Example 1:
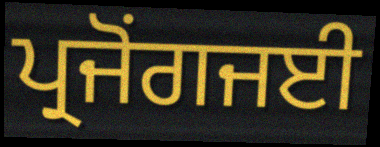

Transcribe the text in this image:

ਪ੍ਰਜੋਂਗਜਈ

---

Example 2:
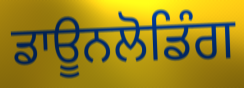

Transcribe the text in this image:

ਡਾਊਨਲੋਡਿੰਗ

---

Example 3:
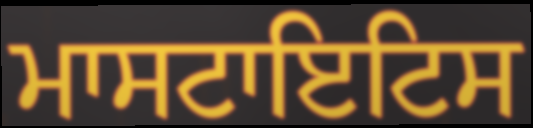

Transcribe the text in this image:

ਮਾਸਟਾਇਟਿਸ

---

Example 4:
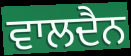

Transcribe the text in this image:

ਵਾਲਦੈਨ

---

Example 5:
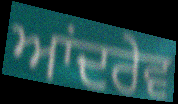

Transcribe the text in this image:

ਆਂਦਰੇਵ